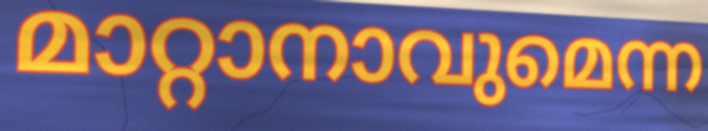
മാറ്റാനാവുമെന്ന